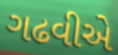
ગઢવીએ